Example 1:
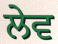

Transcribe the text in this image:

ਲੇਵ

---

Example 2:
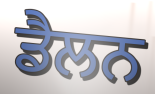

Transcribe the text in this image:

ਡੈਲਨ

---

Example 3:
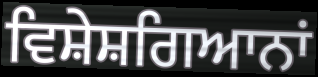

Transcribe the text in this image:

ਵਿਸ਼ੇਸ਼ਗਿਆਨਾਂ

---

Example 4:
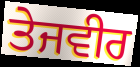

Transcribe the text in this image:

ਤੇਜਵੀਰ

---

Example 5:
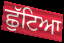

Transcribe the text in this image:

ਛੁੱਟਿਆ